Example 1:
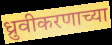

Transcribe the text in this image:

ध्रुवीकरणाच्या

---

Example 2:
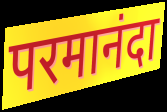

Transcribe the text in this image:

परमानंदा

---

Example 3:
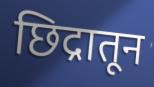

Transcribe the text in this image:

छिद्रातून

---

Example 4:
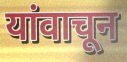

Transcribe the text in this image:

यांवाचून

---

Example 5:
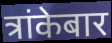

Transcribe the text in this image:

त्रांकेबार